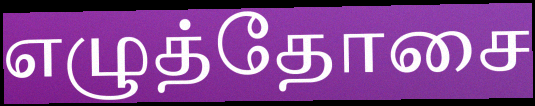
எழுத்தோசை